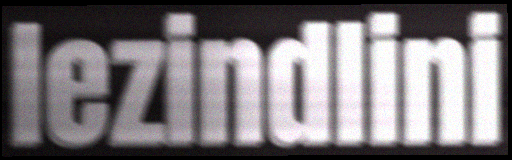
lezindlini